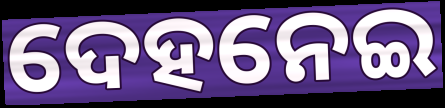
ଦେହନେଇ